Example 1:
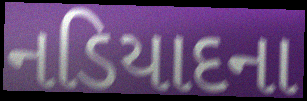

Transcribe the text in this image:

નડિયાદના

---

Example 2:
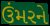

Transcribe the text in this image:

ઉંમરને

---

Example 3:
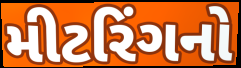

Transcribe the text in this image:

મીટરિંગનો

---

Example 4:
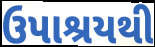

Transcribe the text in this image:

ઉપાશ્રયથી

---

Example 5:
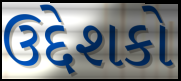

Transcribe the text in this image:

ઉદ્દેશકો